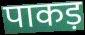
पाकड़